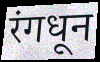
रंगधून